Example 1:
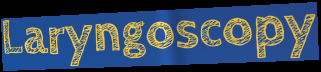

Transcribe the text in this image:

Laryngoscopy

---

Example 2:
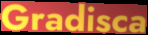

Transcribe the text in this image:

Gradisca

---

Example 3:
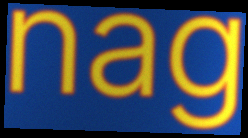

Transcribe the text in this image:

nag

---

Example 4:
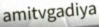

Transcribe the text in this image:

amitvgadiya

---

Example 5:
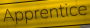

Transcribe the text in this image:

Apprentice